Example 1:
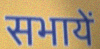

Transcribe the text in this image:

सभायें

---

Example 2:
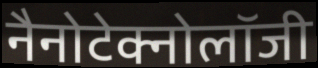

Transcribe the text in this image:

नैनोटेक्नोलॉजी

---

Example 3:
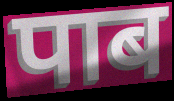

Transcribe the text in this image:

पाब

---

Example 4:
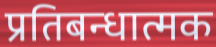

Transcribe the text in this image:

प्रतिबन्धात्मक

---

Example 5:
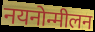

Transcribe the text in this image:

नयनोन्मीलन